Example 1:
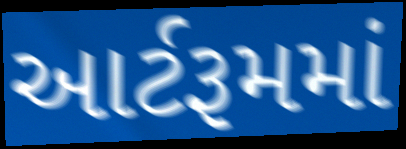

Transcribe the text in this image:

આર્ટરૂમમાં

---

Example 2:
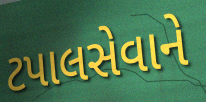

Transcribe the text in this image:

ટપાલસેવાને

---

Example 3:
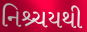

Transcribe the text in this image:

નિશ્ર્ચયથી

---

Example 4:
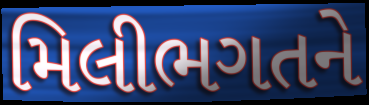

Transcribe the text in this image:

મિલીભગતને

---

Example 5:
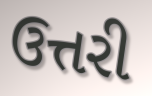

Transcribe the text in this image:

ઉત્તરી